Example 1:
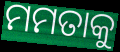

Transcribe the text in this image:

ମମତାକୁ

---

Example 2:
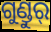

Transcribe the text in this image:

ଗୁଣ୍ଡୁର୍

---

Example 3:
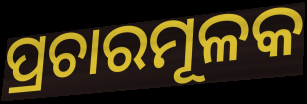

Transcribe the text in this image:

ପ୍ରଚାରମୂଳକ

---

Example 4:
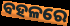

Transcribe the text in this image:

ବହଳରେ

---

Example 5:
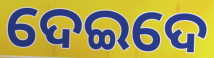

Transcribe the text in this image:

ଦେଇଦେ